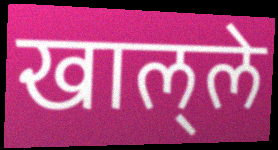
खाल्ले